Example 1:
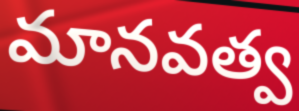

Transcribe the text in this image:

మానవత్వ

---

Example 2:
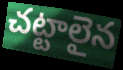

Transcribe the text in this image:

చట్టాలైన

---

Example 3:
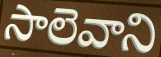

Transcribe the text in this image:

సాలెవాని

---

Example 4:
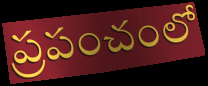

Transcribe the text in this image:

ప్రపంచంలో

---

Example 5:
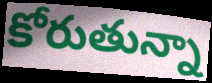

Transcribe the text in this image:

కోరుతున్నా